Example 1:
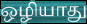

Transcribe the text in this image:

ஒழியாது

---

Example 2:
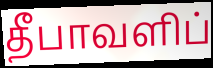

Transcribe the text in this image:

தீபாவளிப்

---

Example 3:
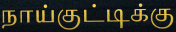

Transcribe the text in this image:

நாய்குட்டிக்கு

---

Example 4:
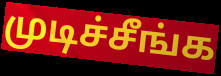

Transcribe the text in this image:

முடிச்சீங்க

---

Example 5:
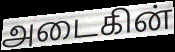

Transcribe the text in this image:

அடைகின்